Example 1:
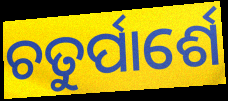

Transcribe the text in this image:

ଚତୁର୍ପାର୍ଶେ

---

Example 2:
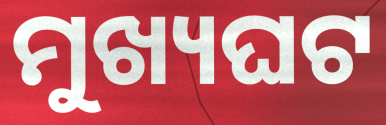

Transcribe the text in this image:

ମୁଖ୍ୟଘଟ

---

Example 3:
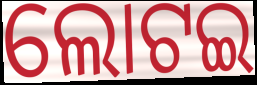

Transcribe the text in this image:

ଲୋଟଇ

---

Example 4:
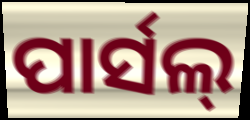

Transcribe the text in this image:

ପାର୍ସଲ୍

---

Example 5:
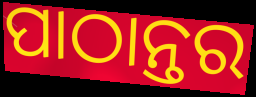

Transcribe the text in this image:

ପାଠାନ୍ତର